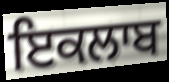
ਇਕਲਾਬ